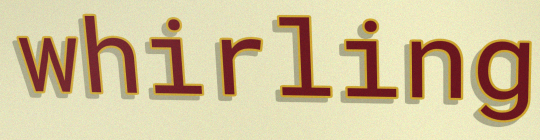
whirling